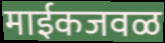
माईकजवळ